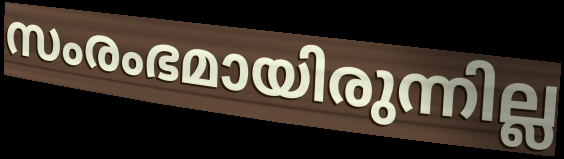
സംരംഭമായിരുന്നില്ല